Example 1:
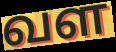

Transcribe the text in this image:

வள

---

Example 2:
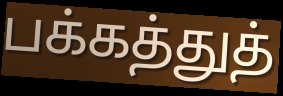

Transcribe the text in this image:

பக்கத்துத்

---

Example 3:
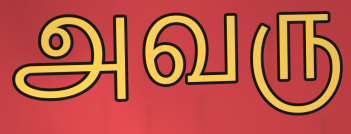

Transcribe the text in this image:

அவரு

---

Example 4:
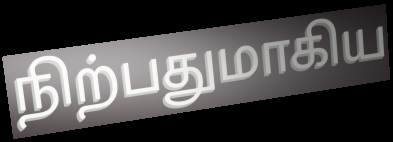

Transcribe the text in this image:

நிற்பதுமாகிய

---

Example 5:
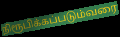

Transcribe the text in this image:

நிரூபிக்கப்படும்வரை